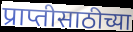
प्राप्तीसाठीच्या